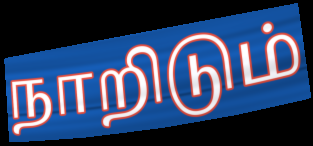
நாறிடும்